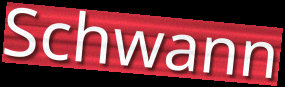
Schwann